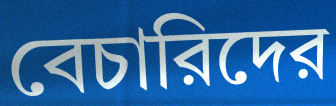
বেচারিদের